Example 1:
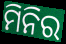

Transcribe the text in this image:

ମିନିର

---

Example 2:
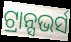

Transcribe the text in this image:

ଟ୍ରାନ୍ସଭର୍ସ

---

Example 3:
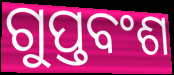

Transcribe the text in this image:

ଗୁପ୍ତବଂଶ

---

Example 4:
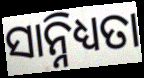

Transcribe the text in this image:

ସାନ୍ନିଧ୍ୟତା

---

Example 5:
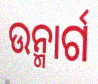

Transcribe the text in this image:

ଉନ୍ମାର୍ଗ